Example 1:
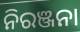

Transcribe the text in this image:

ନିରଞ୍ଜନା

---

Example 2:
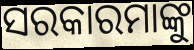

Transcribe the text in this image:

ସରକାରମାଙ୍କୁ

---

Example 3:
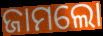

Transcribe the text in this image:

ଜାମଲୋ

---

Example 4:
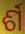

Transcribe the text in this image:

ର୍ଶ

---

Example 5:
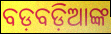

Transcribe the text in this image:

ବଡ଼ବଡ଼ିଆଙ୍କ